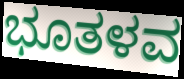
ಭೂತಳವ